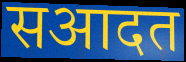
सआदत